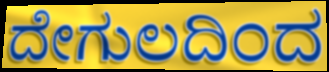
ದೇಗುಲದಿಂದ